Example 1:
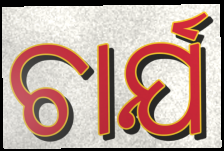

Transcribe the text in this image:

ଚାର୍ଯ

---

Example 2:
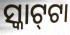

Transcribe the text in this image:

ସ୍କାଟ୍‌ଟା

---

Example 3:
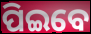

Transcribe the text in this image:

ପିଇବେ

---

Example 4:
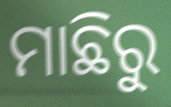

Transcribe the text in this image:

ମାଛିରୁ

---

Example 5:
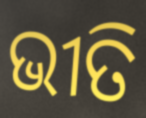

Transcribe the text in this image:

ଭୀତି